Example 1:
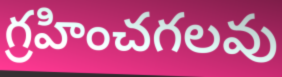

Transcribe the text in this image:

గ్రహించగలవు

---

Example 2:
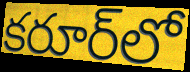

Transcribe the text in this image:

కరూర్‌లో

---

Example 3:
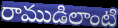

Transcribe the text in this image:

రాముడిలాంటి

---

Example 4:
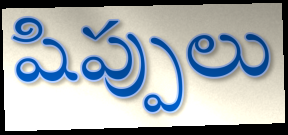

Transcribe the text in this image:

షిప్పులు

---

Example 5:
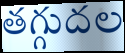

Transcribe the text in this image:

తగ్గుదల